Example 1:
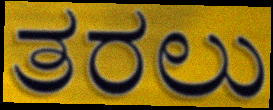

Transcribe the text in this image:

ತರಲು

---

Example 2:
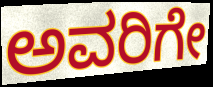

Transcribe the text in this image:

ಅವರಿಗೇ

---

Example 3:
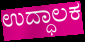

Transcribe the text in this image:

ಉದ್ಧಾಲಕ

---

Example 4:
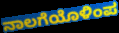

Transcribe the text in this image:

ನಾಲಗೆಯೊಳಿಂಪ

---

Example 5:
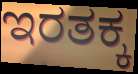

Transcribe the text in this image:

ಇರತಕ್ಕ